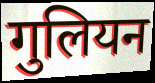
गुलियन